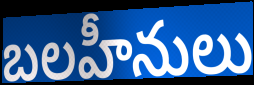
బలహీనులు